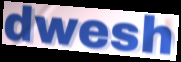
dwesh